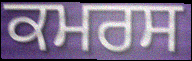
ਕਮਰਸ